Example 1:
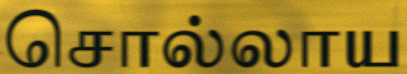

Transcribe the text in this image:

சொல்லாய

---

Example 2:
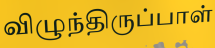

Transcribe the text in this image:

விழுந்திருப்பாள்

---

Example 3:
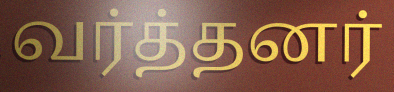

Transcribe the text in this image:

வர்த்தனர்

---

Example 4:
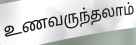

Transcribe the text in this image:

உணவருந்தலாம்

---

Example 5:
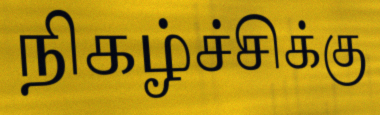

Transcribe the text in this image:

நிகழ்ச்சிக்கு